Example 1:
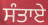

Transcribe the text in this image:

ਸੰਤਾਏ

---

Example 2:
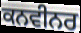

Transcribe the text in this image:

ਕਨਵੀਨਰ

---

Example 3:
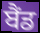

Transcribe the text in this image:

ਬੈੰਡ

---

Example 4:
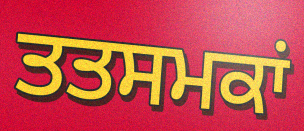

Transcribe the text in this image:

ਤਤਸਮਕਾਂ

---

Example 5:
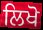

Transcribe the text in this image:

ਲਿਖੋ